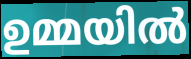
ഉമ്മയിൽ